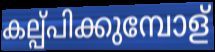
കല്പ്പിക്കുമ്പോള്